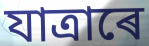
যাত্ৰাৰে